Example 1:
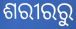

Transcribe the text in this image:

ଶରୀରରୁ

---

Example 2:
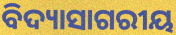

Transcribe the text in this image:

ବିଦ୍ୟାସାଗରୀୟ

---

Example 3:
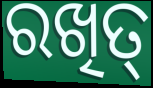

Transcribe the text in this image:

ରଖିତ୍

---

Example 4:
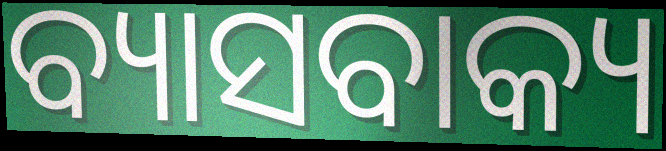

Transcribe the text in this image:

ବ୍ୟାସବାକ୍ୟ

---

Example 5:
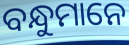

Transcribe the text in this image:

ବନ୍ଧୁମାନେ